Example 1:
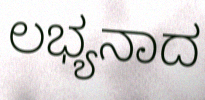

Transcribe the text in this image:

ಲಭ್ಯನಾದ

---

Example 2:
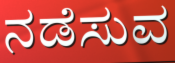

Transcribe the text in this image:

ನಡೆಸುವ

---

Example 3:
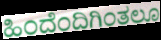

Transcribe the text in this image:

ಹಿಂದೆಂದಿಗಿಂತಲೂ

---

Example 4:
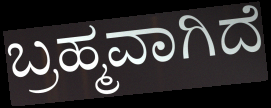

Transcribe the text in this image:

ಬ್ರಹ್ಮವಾಗಿದೆ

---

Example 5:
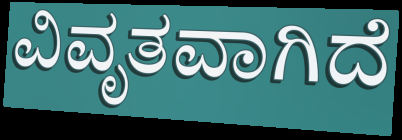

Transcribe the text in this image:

ವಿವೃತವಾಗಿದೆ